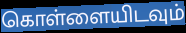
கொள்ளையிடவும்